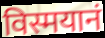
विस्मयानं